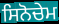
ਸਿਨੋਚੇਮ